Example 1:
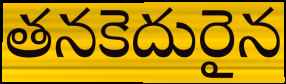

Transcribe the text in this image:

తనకెదురైన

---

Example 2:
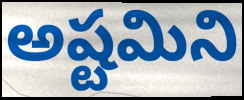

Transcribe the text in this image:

అష్టమిని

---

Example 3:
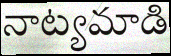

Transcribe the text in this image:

నాట్యమాడి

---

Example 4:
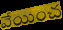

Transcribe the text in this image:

వేయించ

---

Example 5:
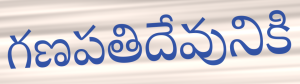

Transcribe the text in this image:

గణపతిదేవునికి